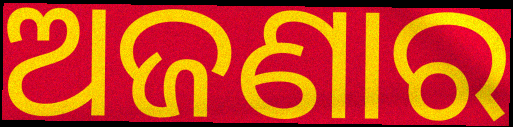
ଅଜଣାର